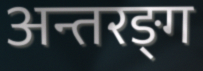
अन्तरङ्ग